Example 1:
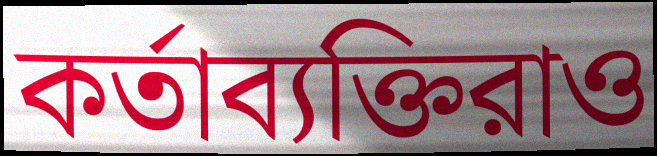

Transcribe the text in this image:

কর্তাব্যক্তিরাও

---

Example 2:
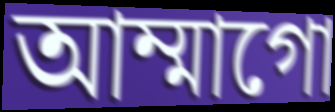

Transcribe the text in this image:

আম্মাগো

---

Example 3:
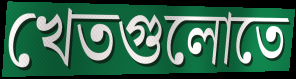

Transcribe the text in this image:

খেতগুলোতে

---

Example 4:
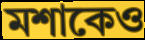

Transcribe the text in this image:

মশাকেও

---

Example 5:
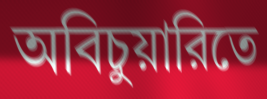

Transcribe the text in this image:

অবিচুয়ারিতে